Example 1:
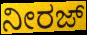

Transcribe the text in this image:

ನೀರಜ್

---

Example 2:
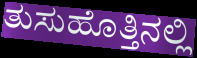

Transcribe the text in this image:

ತುಸುಹೊತ್ತಿನಲ್ಲಿ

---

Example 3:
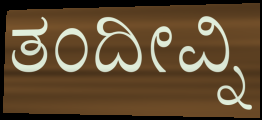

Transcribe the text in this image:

ತಂದೀವ್ನಿ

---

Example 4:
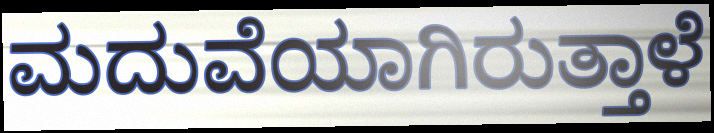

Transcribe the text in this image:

ಮದುವೆಯಾಗಿರುತ್ತಾಳೆ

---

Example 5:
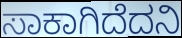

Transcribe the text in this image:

ಸಾಕಾಗಿದೆದನಿ